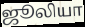
ஜூலியா